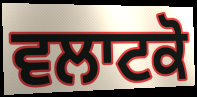
ਵਲਾਟਕੋ